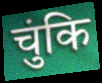
चुंकि